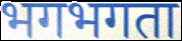
भगभगता